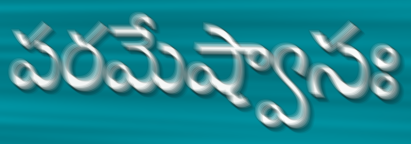
పరమేష్వాసః